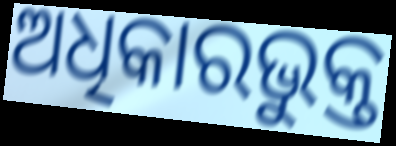
ଅଧିକାରଭୁକ୍ତ